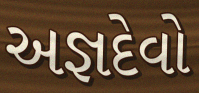
અજ્ઞદેવો